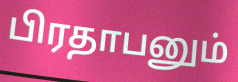
பிரதாபனும்